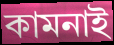
কামনাই